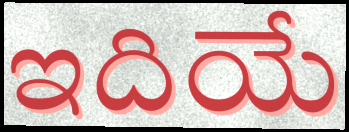
ఇదియే